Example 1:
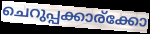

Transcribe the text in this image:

ചെറുപ്പക്കാര്ക്കോ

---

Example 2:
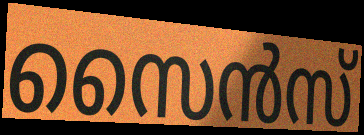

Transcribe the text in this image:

സൈൻസ്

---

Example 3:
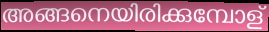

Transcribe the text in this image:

അങ്ങനെയിരിക്കുമ്പോള്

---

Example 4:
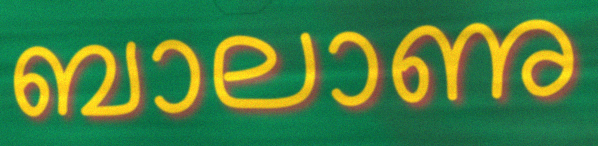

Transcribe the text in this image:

ബാലാണു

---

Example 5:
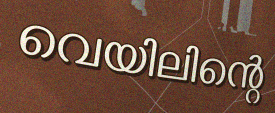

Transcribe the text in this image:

വെയിലിന്റെ